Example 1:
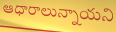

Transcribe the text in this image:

ఆధారాలున్నాయని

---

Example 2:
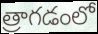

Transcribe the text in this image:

త్రాగడంలో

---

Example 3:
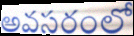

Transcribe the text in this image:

అవసరంలో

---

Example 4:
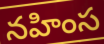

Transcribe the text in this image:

నహింస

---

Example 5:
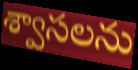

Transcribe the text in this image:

శ్వాసలను